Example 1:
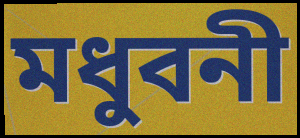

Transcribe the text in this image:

মধুবনী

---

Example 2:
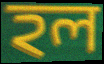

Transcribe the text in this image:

হল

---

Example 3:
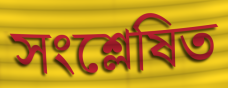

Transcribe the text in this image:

সংশ্লেষিত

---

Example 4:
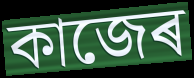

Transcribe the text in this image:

কাজেৰ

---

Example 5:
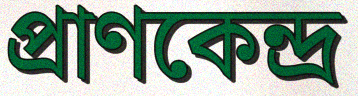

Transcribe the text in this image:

প্ৰাণকেন্দ্ৰ